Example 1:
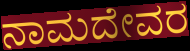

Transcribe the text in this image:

ನಾಮದೇವರ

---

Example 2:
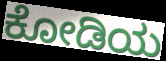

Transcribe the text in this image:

ಕೋಡಿಯ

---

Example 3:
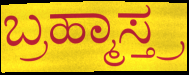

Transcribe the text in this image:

ಬ್ರಹ್ಮಾಸ್ತ್ರ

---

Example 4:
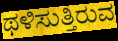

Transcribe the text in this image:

ಥಳಿಸುತ್ತಿರುವ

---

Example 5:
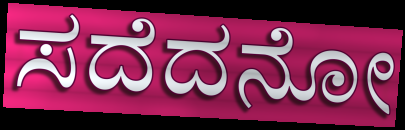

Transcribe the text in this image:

ಸದೆದನೋ